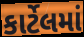
કાર્ટેલમાં